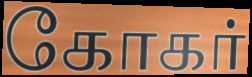
கோகர்